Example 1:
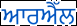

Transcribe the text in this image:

ਆਰਐੱਲ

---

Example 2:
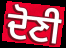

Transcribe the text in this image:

ਦੋਣੀ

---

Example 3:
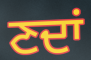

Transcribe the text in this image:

ਣਦਾਂ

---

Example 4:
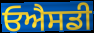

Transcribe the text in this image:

ਓਐਸਡੀ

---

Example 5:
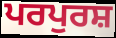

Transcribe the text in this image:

ਪਰਪੁਰਸ਼